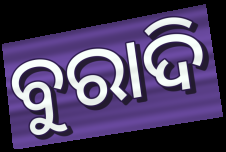
ବୁରାଦି